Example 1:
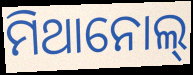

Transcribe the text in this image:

ମିଥାନୋଲ୍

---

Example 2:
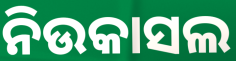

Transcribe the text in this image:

ନିଉକାସଲ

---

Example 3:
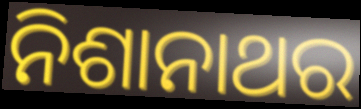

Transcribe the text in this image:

ନିଶାନାଥର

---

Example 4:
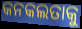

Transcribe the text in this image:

କନକଲତାକୁ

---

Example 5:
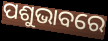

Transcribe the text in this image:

ପଶୁଭାବରେ